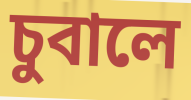
চুবালে